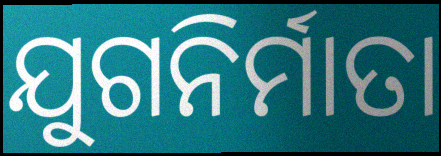
ଯୁଗନିର୍ମାତା